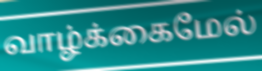
வாழ்க்கைமேல்